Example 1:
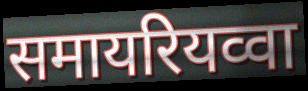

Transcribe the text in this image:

समायरियव्वा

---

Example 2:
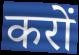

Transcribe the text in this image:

करों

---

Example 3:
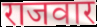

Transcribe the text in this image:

राजवार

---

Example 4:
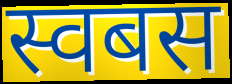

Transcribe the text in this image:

स्वबस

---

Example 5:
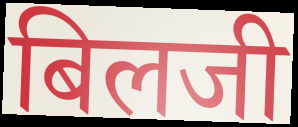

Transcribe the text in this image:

बिलजी